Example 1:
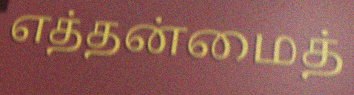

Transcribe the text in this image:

எத்தன்மைத்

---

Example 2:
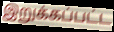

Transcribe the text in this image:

இறுக்கப்பட்ட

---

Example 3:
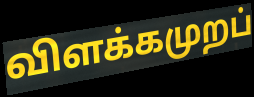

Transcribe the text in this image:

விளக்கமுறப்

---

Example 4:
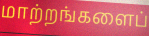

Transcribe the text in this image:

மாற்றங்களைப்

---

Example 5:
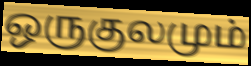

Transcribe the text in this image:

ஒருகுலமும்